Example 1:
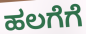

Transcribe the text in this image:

ಹಲಗೆಗೆ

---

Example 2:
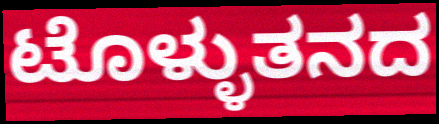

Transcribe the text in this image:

ಟೊಳ್ಳುತನದ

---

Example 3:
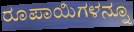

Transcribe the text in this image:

ರೂಪಾಯಿಗಳನ್ನೂ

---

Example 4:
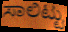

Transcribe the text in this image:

ಸಾಲಿಟ್ಟು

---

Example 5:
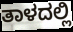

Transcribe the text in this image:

ತಾಳದಲ್ಲಿ